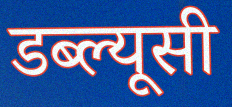
डब्ल्यूसी